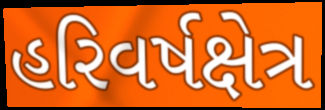
હરિવર્ષક્ષેત્ર